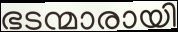
ഭടന്മാരായി